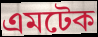
এমটেক